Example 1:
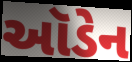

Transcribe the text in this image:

ઑડેન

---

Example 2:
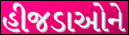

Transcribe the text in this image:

હીજડાઓને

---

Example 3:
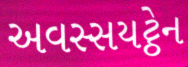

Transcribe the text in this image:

અવસ્સયટ્ઠેન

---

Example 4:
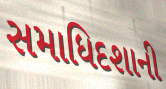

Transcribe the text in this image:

સમાધિદશાની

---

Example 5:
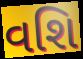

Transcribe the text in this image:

વશિ